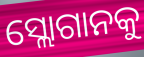
ସ୍ଲୋଗାନକୁ